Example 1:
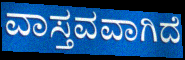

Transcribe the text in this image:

ವಾಸ್ತವವಾಗಿದೆ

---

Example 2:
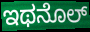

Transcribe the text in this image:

ಇಥನೊಲ್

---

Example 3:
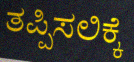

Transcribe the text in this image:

ತಪ್ಪಿಸಲಿಕ್ಕೆ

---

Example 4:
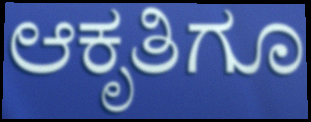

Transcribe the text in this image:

ಆಕೃತಿಗೂ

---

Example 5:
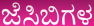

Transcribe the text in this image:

ಜೆಸಿಬಿಗಳ